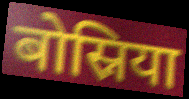
बोस्निया